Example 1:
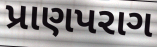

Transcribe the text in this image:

પ્રાણપરાગ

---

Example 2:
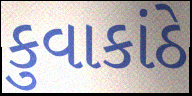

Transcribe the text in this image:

કુવાકાંઠે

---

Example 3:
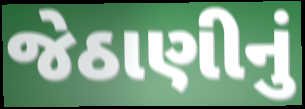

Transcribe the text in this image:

જેઠાણીનું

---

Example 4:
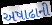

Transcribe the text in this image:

અષાઢાની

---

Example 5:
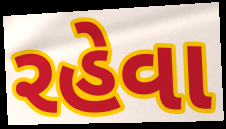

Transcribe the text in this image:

રહેવા